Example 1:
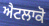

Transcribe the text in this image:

ਐਟਲਾਕੋ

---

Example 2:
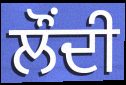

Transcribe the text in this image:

ਲੌਂਦੀ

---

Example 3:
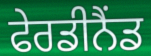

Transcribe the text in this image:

ਫੇਰਡੀਨੈਂਡ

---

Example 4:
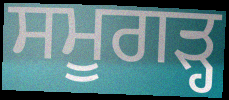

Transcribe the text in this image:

ਸਮੂਗੜ੍ਹ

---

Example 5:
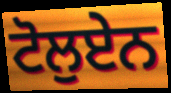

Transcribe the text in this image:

ਟੋਲੁਏਨ